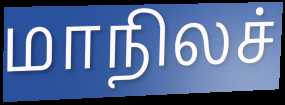
மாநிலச்